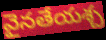
వైనతేయశ్చ